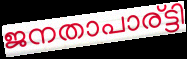
ജനതാപാര്ട്ടി